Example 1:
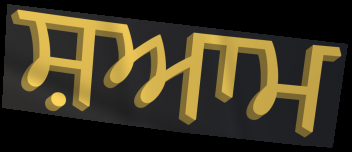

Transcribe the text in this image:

ਸ਼ਆਮ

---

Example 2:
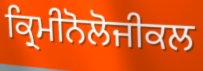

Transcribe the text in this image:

ਕ੍ਰਿਮੀਨੋਲੋਜੀਕਲ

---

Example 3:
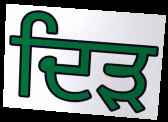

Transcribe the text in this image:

ਦਿੜ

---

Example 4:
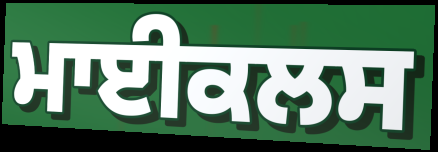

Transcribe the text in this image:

ਮਾਈਕਲਸ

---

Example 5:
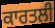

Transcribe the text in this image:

ਕਾਰਤਲੀ